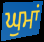
ਘੁਮਾਂ